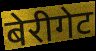
बेरीगेट